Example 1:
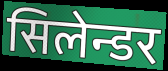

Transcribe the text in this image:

सिलेन्डर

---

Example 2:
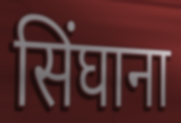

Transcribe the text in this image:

सिंघाना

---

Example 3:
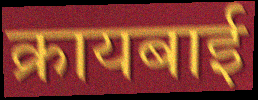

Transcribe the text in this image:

क्रायबाई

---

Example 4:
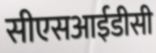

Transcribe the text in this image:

सीएसआईडीसी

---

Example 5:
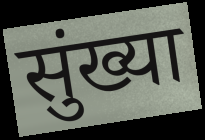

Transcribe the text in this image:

सुंख्या